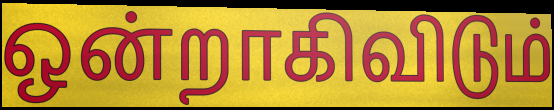
ஒன்றாகிவிடும்